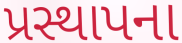
પ્રસ્થાપના